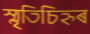
স্মৃতিচিহ্নৰ